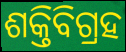
ଶକ୍ତିବିଗ୍ରହ